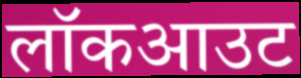
लॉकआउट